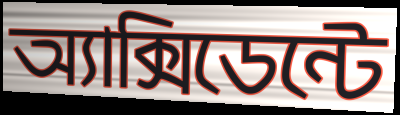
অ্যাক্সিডেন্টে